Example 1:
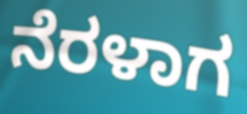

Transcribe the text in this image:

ನೆರಳಾಗ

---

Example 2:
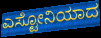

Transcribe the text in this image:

ಎಸ್ಟೋನಿಯಾದ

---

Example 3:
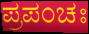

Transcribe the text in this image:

ಪ್ರಪಂಚಃ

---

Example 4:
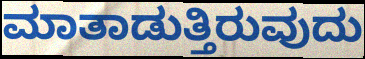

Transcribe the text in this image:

ಮಾತಾಡುತ್ತಿರುವುದು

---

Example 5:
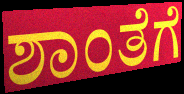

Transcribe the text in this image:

ಶಾಂತೆಗೆ